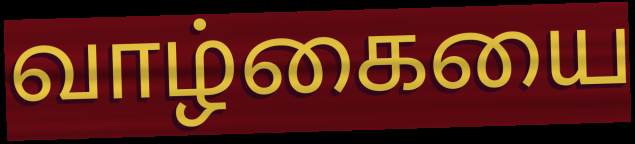
வாழ்கையை